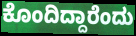
ಕೊಂದಿದ್ದಾರೆಂದು